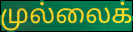
முல்லைக்